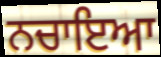
ਨਚਾਇਆ